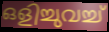
ഒളിച്ചുവച്ച്